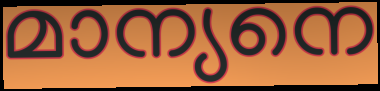
മാന്യനെ